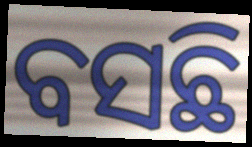
ବସଛି